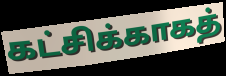
கட்சிக்காகத்